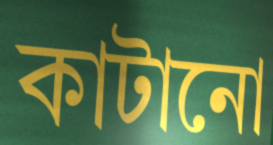
কাটানো